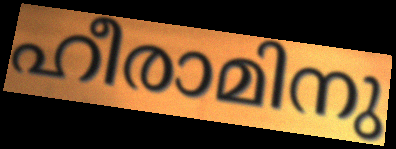
ഹീരാമിനു